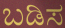
ಬಡಿಸ